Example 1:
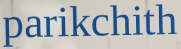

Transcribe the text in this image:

parikchith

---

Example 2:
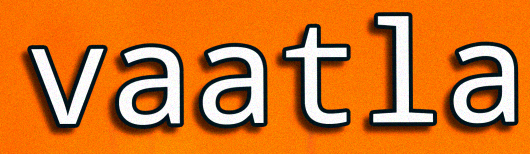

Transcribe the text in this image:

vaatla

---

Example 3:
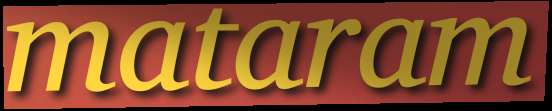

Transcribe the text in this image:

mataram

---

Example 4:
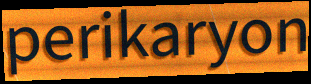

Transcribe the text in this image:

perikaryon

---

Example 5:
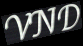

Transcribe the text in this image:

VND